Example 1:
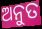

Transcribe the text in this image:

ଅନୁତ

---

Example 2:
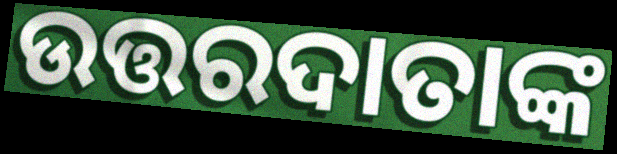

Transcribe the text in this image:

ଉତ୍ତରଦାତାଙ୍କ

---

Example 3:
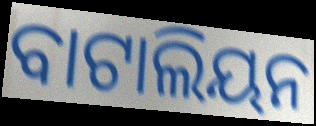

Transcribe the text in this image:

ବାଟାଲିୟନ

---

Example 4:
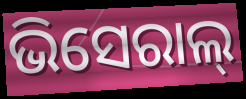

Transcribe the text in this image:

ଭିସେରାଲ୍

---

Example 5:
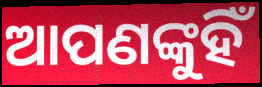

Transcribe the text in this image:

ଆପଣଙ୍କୁହିଁ